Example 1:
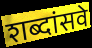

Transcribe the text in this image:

शब्दांसवे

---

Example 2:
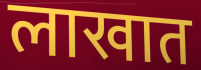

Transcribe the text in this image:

लाखात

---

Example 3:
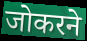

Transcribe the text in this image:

जोकरने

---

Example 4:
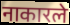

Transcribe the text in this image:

नाकारले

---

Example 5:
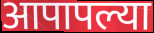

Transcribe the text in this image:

आपापल्या